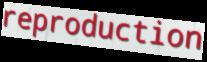
reproduction